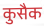
कुसैक